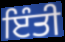
ਇੰਤੀ